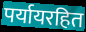
पर्यायरहित